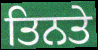
ਤਿਨਤੇ